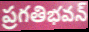
ప్రగతిభవన్